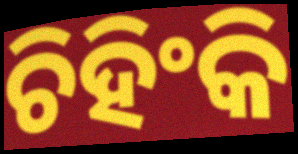
ଚିହିଂକି